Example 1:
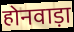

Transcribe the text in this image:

होनवाड़ा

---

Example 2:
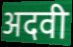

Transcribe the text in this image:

अदवी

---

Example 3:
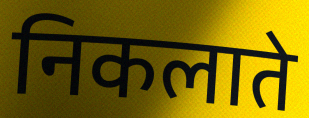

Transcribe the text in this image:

निकलाते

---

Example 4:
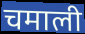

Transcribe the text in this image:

चमाली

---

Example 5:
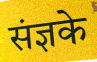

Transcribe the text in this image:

संज्ञके